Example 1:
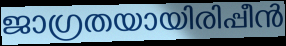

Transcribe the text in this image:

ജാഗ്രതയായിരിപ്പീൻ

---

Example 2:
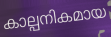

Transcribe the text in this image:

കാല്പനികമായ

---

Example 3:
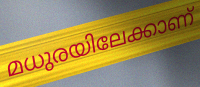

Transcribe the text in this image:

മധുരയിലേക്കാണ്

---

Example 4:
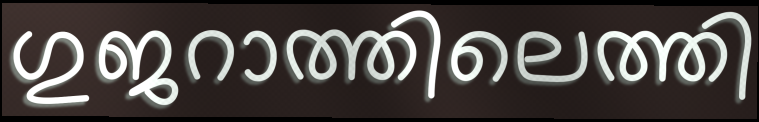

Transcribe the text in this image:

ഗുജറാത്തിലെത്തി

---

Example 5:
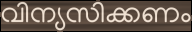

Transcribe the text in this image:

വിന്യസിക്കണം